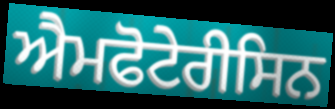
ਐਮਫੋਟੇਰੀਸਿਨ